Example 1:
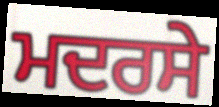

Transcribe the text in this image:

ਮਦਰਸੇ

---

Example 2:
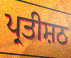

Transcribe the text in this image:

ਪ੍ਰਤੀਸ਼ਠ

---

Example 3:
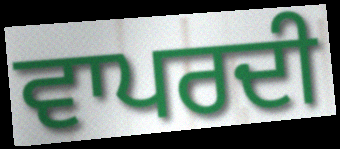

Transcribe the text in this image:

ਵਾਪਰਦੀ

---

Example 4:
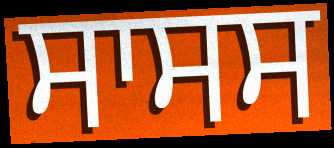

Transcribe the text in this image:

ਸਾਸਸ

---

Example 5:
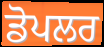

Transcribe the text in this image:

ਡੋਪਲਰ